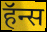
हॅन्स